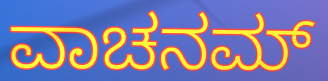
ವಾಚನಮ್